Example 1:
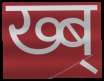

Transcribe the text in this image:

ख्ब्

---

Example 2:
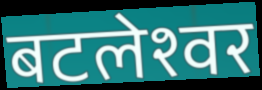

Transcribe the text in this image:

बटलेश्वर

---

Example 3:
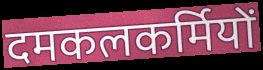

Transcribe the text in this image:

दमकलकर्मियों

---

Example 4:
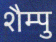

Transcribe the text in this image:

शैम्पु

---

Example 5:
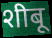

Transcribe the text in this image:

शीबू